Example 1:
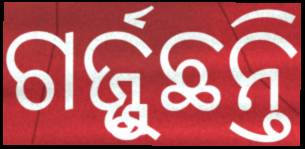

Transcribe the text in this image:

ଗର୍ଜ୍ଜୁଛନ୍ତି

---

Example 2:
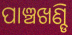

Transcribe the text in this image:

ପାଞ୍ଚଖଣ୍ଡି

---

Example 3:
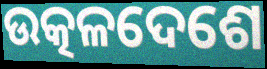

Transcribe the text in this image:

ଉତ୍କଳଦେଶେ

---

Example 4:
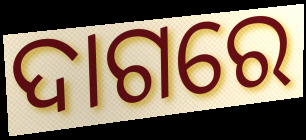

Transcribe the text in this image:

ଦାଗରେ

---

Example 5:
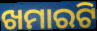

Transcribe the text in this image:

ଖମାରଟି